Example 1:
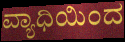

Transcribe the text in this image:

ವ್ಯಾಧಿಯಿಂದ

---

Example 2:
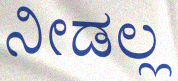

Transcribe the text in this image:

ನೀಡಲ್ಲ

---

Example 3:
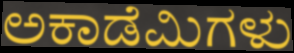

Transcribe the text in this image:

ಅಕಾಡೆಮಿಗಳು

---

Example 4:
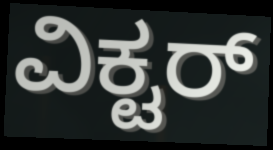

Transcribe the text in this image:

ವಿಕ್ಟರ್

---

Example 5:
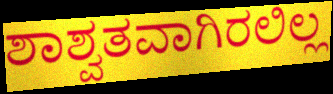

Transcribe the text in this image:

ಶಾಶ್ವತವಾಗಿರಲಿಲ್ಲ